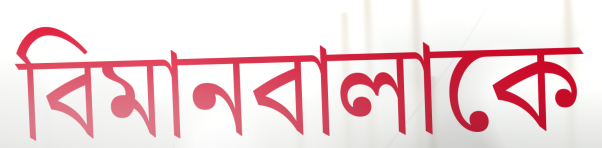
বিমানবালাকে